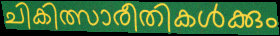
ചികിത്സാരീതികൾക്കും